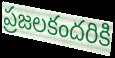
ప్రజలకందరికి